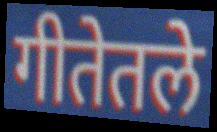
गीतेतले